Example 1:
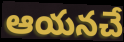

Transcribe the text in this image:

ఆయనచే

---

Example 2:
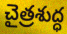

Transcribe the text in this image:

చైత్రశుద్ధ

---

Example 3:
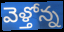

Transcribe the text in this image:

వెళ్తోన్న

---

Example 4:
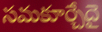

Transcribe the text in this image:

సమకూర్చేదై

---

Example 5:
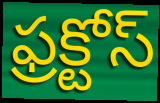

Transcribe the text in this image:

ఫ్రక్టోస్